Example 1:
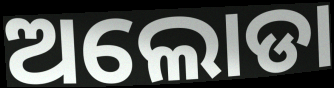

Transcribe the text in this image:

ଅଲୋଡା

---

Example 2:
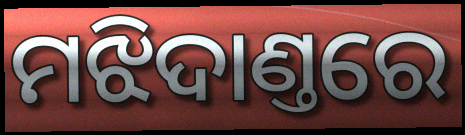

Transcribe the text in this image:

ମଝିଦାଣ୍ତରେ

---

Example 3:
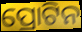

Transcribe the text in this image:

ପ୍ରୋଟିନ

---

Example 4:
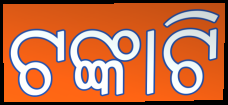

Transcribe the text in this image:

ଟଙ୍କାଟି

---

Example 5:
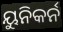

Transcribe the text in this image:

ୟୁନିକର୍ନ